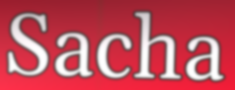
Sacha